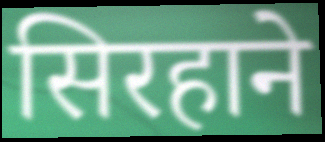
सिरहाने